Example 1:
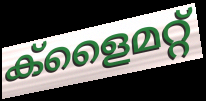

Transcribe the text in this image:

ക്ളൈമറ്റ്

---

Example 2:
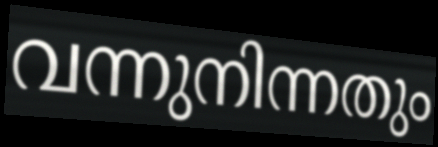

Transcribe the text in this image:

വന്നുനിന്നതും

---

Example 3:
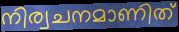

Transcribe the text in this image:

നിര്വചനമാണിത്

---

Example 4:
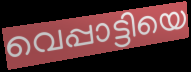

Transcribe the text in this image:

വെപ്പാട്ടിയെ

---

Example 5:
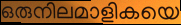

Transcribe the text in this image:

ഒരുനിലമാളികയെ